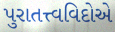
પુરાતત્ત્વવિદોએ